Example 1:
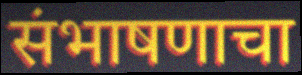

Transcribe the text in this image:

संभाषणाचा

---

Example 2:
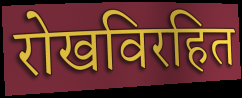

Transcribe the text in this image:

रोखविरहित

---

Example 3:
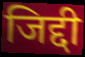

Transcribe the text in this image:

जिद्दी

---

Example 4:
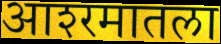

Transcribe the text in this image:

आश्रमातला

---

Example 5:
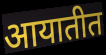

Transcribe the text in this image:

आयातीत